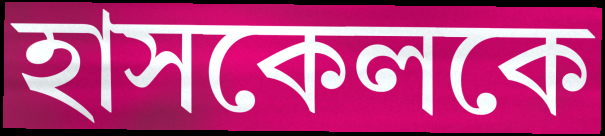
হাসকেলকে